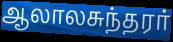
ஆலாலசுந்தரர்